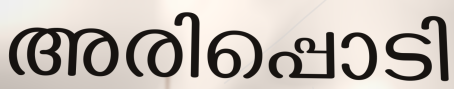
അരിപ്പൊടി